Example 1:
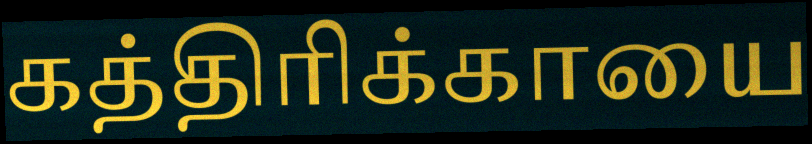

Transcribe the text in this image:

கத்திரிக்காயை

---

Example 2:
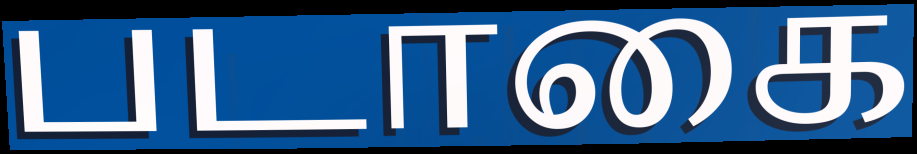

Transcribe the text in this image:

படாகை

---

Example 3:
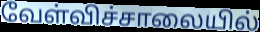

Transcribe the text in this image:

வேள்விச்சாலையில்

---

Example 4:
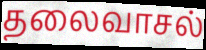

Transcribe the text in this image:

தலைவாசல்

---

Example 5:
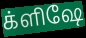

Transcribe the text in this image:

க்ளிஷே